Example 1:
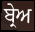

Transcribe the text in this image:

ਬ੍ਰੇਅ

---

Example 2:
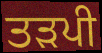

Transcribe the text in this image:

ਤੜਪੀ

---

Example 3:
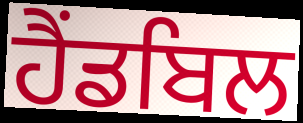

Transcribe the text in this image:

ਹੈਂਡਬਿਲ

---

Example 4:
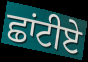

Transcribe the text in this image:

ਛਾਂਟੀਏ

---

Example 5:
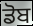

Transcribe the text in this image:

ਡੋਬ